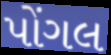
પોંગલ